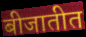
बीजातीत